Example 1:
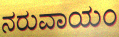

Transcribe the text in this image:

ನರುವಾಯಂ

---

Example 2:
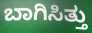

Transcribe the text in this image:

ಬಾಗಿಸಿತ್ತು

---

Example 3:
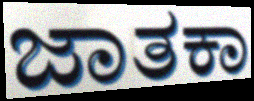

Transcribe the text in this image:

ಜಾತಕಾ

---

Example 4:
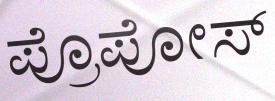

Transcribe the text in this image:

ಪ್ರೊಪೋಸ್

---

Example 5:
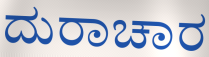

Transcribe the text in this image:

ದುರಾಚಾರ